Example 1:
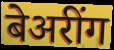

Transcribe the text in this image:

बेअरींग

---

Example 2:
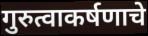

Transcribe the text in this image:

गुरुत्वाकर्षणाचे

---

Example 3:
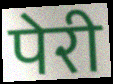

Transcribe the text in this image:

पेरी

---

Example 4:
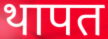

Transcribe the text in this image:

थापत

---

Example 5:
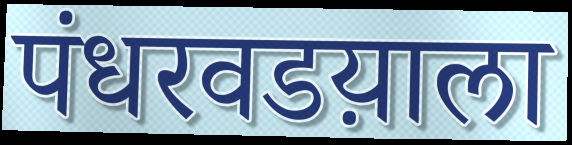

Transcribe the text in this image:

पंधरवडय़ाला